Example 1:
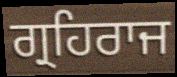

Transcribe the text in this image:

ਗ੍ਰਹਿਰਾਜ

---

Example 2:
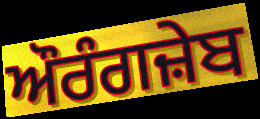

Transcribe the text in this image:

ਔਰੰਗਜ਼ੇਬ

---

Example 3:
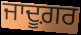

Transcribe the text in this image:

ਜਾਦੂਗ਼ਰ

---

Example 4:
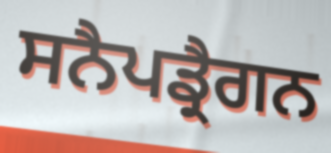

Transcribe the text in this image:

ਸਨੈਪਡ੍ਰੈਗਨ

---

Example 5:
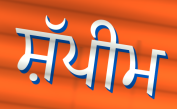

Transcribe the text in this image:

ਸ਼ੱਪੀਮ